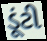
ડૂંટી